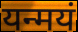
यन्मयं